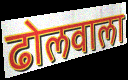
ढोलवाला